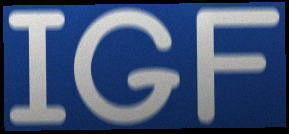
IGF